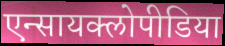
एन्सायक्लोपीडिया